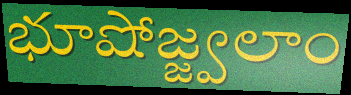
భూషోజ్జ్వలాం